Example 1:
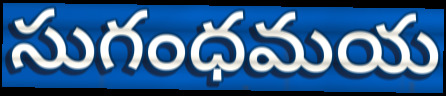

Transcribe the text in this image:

సుగంధమయ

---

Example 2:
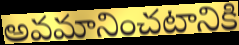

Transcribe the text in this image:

అవమానించటానికి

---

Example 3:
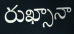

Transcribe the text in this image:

రుఖ్సానా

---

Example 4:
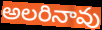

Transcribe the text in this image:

అలరినావు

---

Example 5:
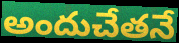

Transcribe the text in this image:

అందుచేతనే